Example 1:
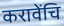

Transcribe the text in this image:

करावेंचि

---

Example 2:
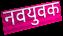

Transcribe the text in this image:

नवयुवक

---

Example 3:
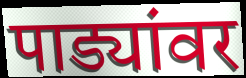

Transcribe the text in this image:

पाड्यांवर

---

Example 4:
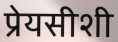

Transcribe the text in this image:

प्रेयसीशी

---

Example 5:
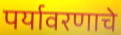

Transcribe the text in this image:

पर्यावरणाचे